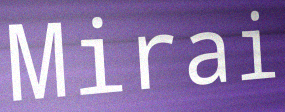
Mirai